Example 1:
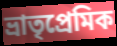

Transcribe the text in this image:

ভ্রাতৃপ্রেমিক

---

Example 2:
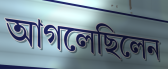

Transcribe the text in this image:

আগলেছিলেন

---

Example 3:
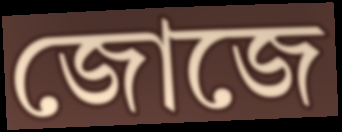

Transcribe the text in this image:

জোজে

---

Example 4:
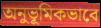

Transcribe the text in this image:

অনুভূমিকভাবে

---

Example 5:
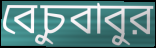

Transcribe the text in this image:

বেচুবাবুর